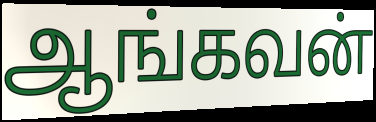
ஆங்கவன்